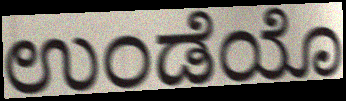
ಉಂಡೆಯೊ